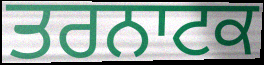
ਤਰਨਾਟਕ